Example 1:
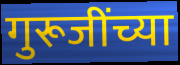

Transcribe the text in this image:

गुरूजींच्या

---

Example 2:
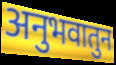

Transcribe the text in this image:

अनुभवातुन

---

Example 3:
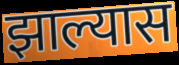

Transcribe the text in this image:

झाल्यास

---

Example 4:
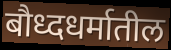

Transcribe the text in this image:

बौध्दधर्मातील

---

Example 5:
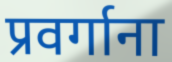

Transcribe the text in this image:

प्रवर्गाना